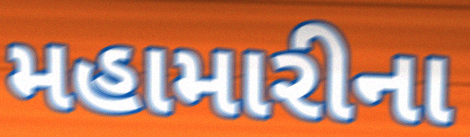
મહામારીના